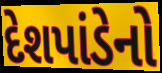
દેશપાંડેનો